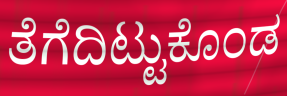
ತೆಗೆದಿಟ್ಟುಕೊಂಡ